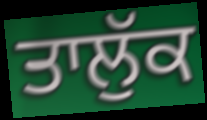
ਤਾਲੁੱਕ